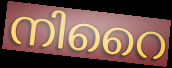
നിറൈ